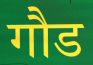
गौड